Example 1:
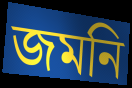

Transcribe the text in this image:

জমনি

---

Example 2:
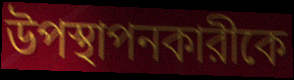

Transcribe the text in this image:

উপস্থাপনকারীকে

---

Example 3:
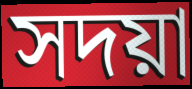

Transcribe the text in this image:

সদয়া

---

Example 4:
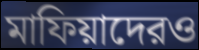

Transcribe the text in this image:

মাফিয়াদেরও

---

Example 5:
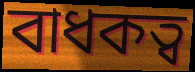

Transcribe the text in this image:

বাধকত্ব